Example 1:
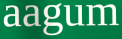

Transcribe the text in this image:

aagum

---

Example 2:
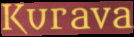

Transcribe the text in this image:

Kurava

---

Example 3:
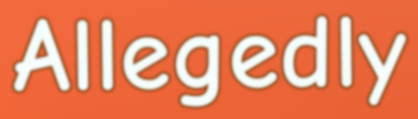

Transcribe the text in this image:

Allegedly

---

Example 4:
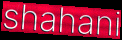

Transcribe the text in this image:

shahani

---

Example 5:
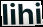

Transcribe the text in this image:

lihi